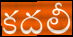
కదలీ